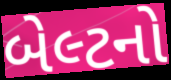
બેલ્ટનો